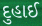
દુહાઈ